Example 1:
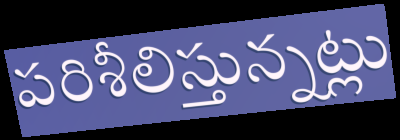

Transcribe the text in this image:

పరిశీలిస్తున్నట్లు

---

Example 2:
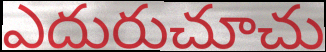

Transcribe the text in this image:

ఎదురుచూచు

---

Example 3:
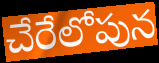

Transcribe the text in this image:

చేరేలోపున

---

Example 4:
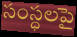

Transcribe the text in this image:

సంస్ధలపై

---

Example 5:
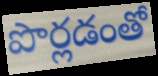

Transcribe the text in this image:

పొర్లడంతో